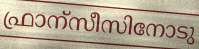
ഫ്രാന്സീസിനോടു